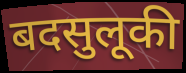
बदसुलूकी